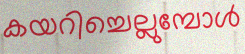
കയറിച്ചെല്ലുമ്പോൾ